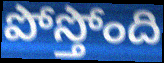
పోస్తోంది